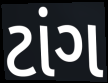
ટાંગ